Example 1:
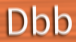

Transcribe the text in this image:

Dbb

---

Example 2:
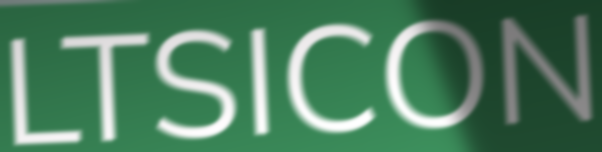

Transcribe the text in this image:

LTSICON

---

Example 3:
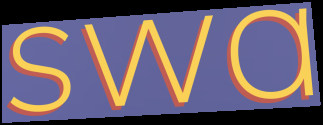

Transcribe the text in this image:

swa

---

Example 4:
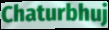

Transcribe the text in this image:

Chaturbhuj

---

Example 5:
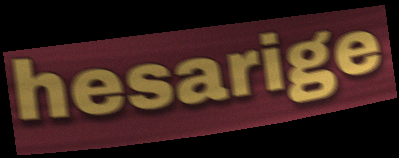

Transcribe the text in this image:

hesarige